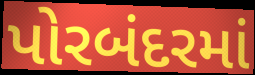
પોરબંદરમાં